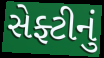
સેફ્ટીનું